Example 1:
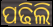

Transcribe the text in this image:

ପଢିଲି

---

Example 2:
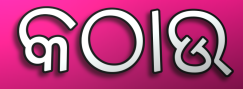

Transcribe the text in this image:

କଠାଉ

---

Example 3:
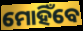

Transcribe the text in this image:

ମୋହିଁବେ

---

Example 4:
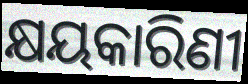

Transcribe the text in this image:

କ୍ଷୟକାରିଣୀ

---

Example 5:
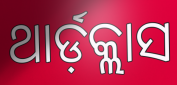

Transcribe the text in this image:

ଥାର୍ଡ଼କ୍ଲାସ